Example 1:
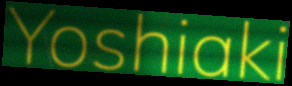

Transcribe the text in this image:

Yoshiaki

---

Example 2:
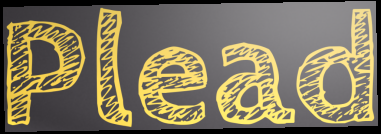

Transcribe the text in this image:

Plead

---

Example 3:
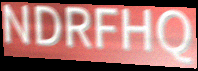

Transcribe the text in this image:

NDRFHQ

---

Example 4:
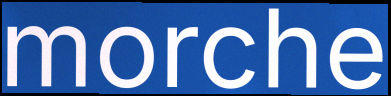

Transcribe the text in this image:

morche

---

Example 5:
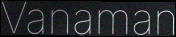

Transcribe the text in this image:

Vanaman